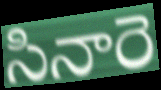
సినారె